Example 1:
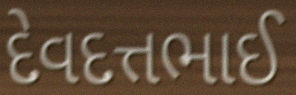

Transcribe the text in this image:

દેવદત્તભાઈ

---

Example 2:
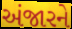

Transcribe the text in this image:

અંજારને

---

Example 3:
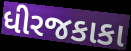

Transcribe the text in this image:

ધીરજકાકા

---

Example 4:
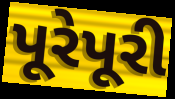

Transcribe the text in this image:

પૂરેપૂરી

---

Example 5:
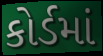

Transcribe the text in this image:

કોર્ડમાં